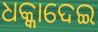
ଧକ୍କାଦେଇ